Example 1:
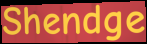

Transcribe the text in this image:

Shendge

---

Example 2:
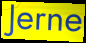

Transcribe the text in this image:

Jerne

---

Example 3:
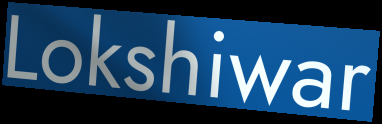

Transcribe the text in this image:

Lokshiwar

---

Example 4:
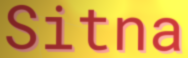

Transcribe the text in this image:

Sitna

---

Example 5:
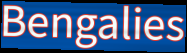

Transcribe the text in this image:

Bengalies